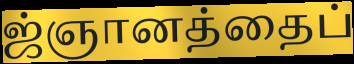
ஜ்ஞானத்தைப்